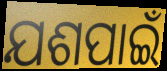
ଯଶପାଇଁ